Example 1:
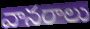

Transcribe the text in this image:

వానరాలు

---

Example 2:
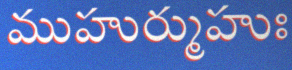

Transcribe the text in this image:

ముహుర్ముహుః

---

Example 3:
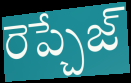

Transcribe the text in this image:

రెప్చేజ్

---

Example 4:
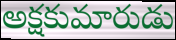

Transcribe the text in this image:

అక్షకుమారుడు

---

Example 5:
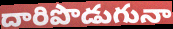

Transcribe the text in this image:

దారిపొడుగునా